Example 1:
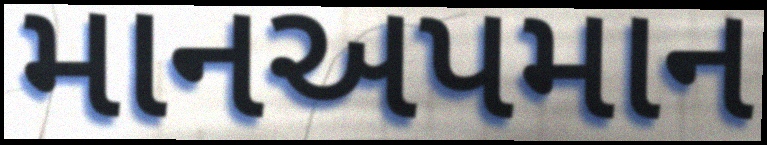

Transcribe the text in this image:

માનઅપમાન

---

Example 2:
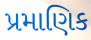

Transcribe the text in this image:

પ્રમાણિક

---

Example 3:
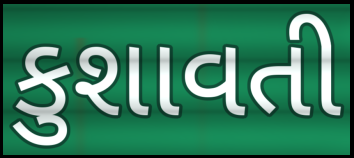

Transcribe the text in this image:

કુશાવતી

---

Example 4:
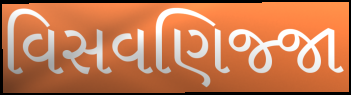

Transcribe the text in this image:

વિસવણિજ્જા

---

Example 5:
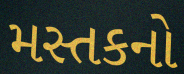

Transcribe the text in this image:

મસ્તકનો